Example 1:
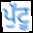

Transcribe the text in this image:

ਪੁੱਟੂ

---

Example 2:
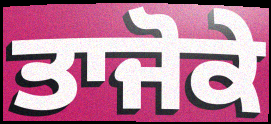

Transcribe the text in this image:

ਤਾਜੋਕੇ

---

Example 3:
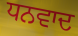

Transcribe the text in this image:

ਧਨਵਾਦ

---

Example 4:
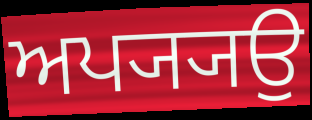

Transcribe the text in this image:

ਅਪ੍ਯ੍ਯਉ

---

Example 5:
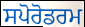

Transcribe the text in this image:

ਸਪੋਰੋਡਰਮ